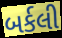
બર્કલી